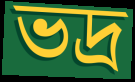
ভদ্ৰ